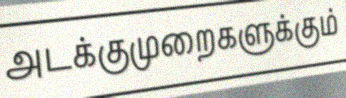
அடக்குமுறைகளுக்கும்